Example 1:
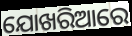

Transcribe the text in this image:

ଯୋଖରିଆରେ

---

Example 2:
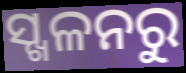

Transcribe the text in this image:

ସ୍ଖଳନରୁ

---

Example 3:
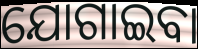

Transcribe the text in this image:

ଯୋଗାଇବା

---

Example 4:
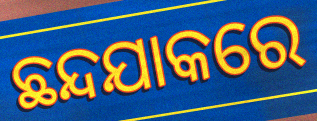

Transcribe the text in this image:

ଛନ୍ଦଯାକରେ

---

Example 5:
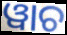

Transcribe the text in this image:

ୱାଚ